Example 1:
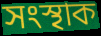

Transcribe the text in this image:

সংস্থাক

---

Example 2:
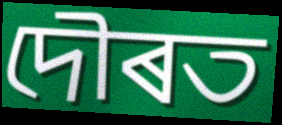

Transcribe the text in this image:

দৌৰত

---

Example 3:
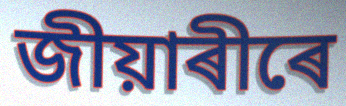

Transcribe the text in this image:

জীয়াৰীৰে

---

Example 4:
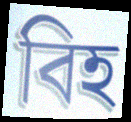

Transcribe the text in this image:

বিহ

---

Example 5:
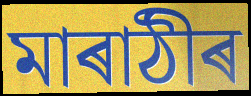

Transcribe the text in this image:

মাৰাঠীৰ